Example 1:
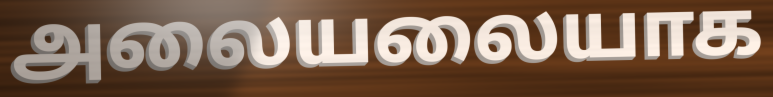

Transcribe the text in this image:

அலையலையாக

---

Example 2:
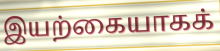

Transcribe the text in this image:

இயற்கையாகக்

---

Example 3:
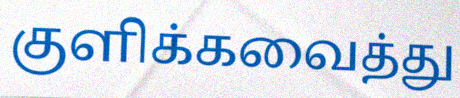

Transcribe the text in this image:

குளிக்கவைத்து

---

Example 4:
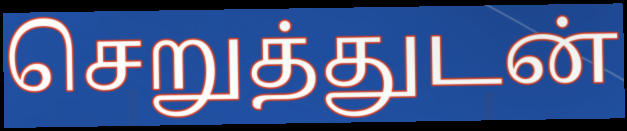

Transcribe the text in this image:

செறுத்துடன்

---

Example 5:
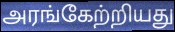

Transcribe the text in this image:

அரங்கேற்றியது